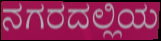
ನಗರದಲ್ಲಿಯ